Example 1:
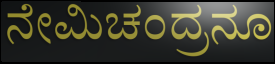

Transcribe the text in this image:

ನೇಮಿಚಂದ್ರನೂ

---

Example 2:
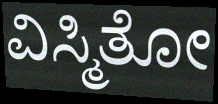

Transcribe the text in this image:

ವಿಸ್ಮಿತೋ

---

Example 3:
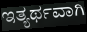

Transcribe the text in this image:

ಇತ್ಯರ್ಥವಾಗಿ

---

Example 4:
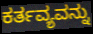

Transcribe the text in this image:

ಕರ್ತವ್ಯವನ್ನು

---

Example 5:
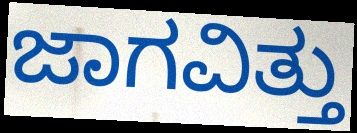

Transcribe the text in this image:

ಜಾಗವಿತ್ತು